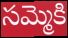
సమ్మెకి